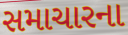
સમાચારના